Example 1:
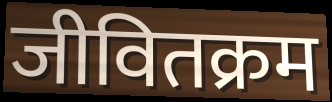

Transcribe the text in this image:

जीवितक्रम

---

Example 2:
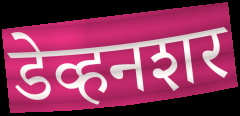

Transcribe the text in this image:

डेव्हनशर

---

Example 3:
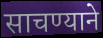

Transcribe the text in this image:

साचण्याने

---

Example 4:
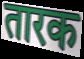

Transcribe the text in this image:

तारक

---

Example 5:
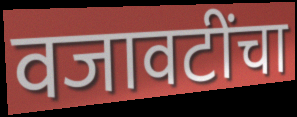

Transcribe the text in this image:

वजावटींचा